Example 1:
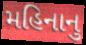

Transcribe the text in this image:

મહિનાનુ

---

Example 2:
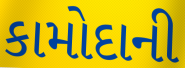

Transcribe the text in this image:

કામોદાની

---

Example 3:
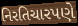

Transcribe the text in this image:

નિરતિચારપણે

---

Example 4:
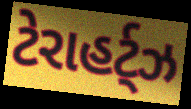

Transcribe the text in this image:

ટેરાહર્ટ્ઝ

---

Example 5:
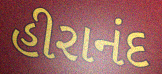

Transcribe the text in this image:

હીરાનંદ